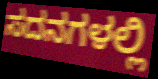
ಸದನಗಳಲ್ಲಿ